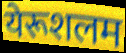
येरूशलम